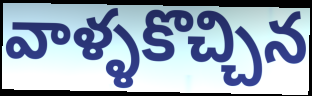
వాళ్ళకొచ్చిన